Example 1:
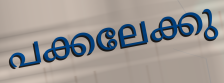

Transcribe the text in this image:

പക്കലേക്കു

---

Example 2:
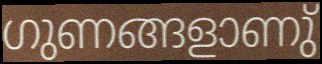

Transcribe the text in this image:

ഗുണങ്ങളാണു്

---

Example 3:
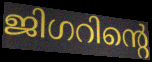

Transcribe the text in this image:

ജിഗറിന്റെ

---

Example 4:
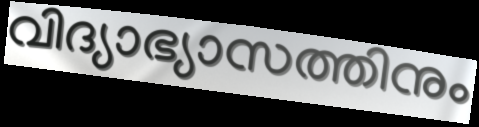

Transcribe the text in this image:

വിദ്യാഭ്യാസത്തിനും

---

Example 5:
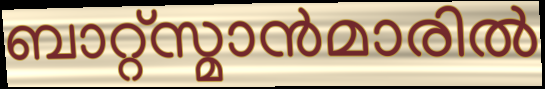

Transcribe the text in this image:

ബാറ്റ്സ്മാൻമാരിൽ